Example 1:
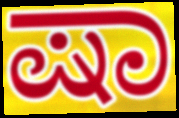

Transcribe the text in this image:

ಷಾ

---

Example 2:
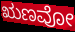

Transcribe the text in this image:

ಋಣವೋ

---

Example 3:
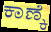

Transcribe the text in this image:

ಕಾಣ್ಕೆ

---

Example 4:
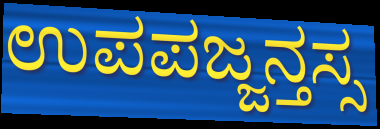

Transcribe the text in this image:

ಉಪಪಜ್ಜನ್ತಸ್ಸ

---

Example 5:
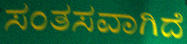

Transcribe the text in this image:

ಸಂತಸವಾಗಿದೆ